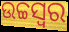
ଉଚ୍ଚସ୍ଵର